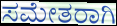
ಸಮೇತರಾಗಿ